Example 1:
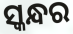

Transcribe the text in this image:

ସ୍କନ୍ଧର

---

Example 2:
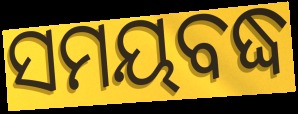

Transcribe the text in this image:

ସମୟବଦ୍ଧ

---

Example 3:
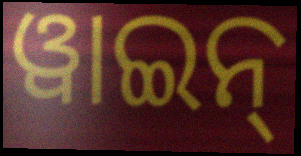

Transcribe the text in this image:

ୱାଇନ୍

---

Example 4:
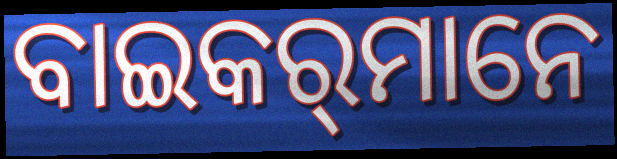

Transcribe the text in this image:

ବାଇକର୍‌ମାନେ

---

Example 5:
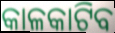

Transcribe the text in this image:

କାଳକାଟିବ